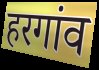
हरगांव